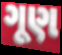
ગૂણ